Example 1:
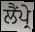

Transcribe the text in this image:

ਲੈਂਪ੍ਰੇ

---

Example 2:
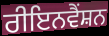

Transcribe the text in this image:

ਰੀਇਨਵੈਂਸ਼ਨ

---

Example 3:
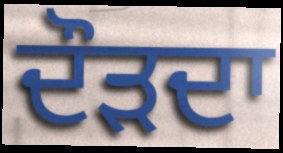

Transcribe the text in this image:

ਦੌੜਦਾ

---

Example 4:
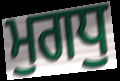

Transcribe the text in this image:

ਮੁਗਧੁ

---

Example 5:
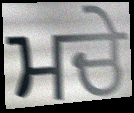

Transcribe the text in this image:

ਮਚੇ